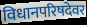
विधानपरिषदेवर